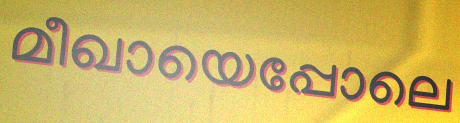
മീഖായെപ്പോലെ